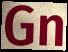
Gn